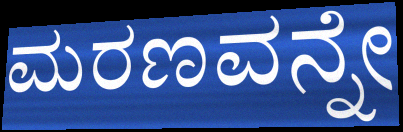
ಮರಣವನ್ನೇ